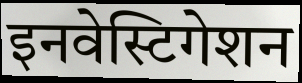
इनवेस्टिगेशन